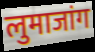
लुमाजांग